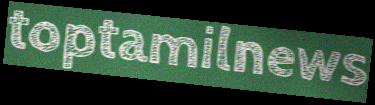
toptamilnews